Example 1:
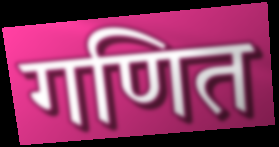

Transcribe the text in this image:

गणित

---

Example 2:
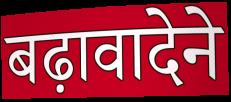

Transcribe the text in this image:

बढ़ावादेने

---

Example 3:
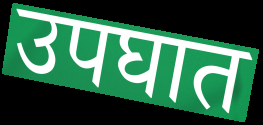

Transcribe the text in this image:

उपघात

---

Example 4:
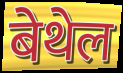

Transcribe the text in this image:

बेथेल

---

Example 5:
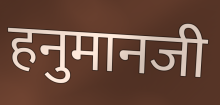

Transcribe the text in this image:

हनुमानजी